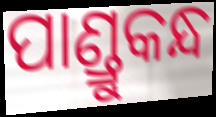
ପାଣ୍ଡ୍ରୁକନ୍ଧ